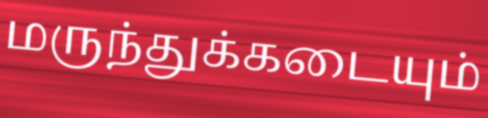
மருந்துக்கடையும்